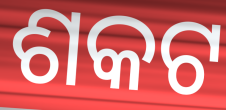
ଶକଟ